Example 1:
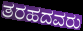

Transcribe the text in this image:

ತರಹದವರು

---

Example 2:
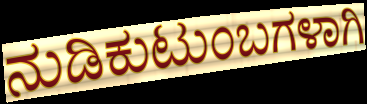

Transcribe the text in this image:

ನುಡಿಕುಟುಂಬಗಳಾಗಿ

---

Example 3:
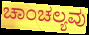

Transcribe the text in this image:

ಚಾಂಚಲ್ಯವು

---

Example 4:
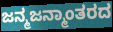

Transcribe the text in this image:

ಜನ್ಮಜನ್ಮಾಂತರದ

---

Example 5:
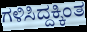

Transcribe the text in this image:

ಗಳಿಸಿದ್ದಕ್ಕಿಂತ